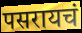
पसरायचं